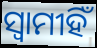
ସ୍ଵାମୀହିଁ